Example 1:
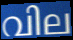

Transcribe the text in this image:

വില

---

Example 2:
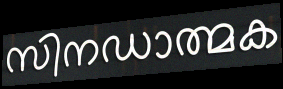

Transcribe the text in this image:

സിനഡാത്മക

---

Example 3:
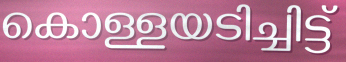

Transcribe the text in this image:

കൊള്ളയടിച്ചിട്ട്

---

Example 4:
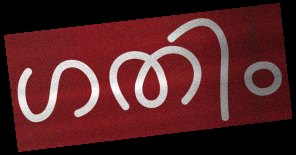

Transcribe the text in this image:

ഗതിം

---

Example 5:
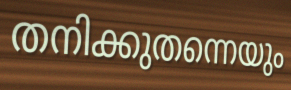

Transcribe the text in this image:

തനിക്കുതന്നെയും